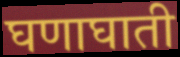
घणाघाती